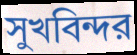
সুখবিন্দর